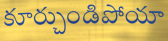
కూర్చుండిపోయా